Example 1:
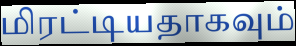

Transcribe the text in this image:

மிரட்டியதாகவும்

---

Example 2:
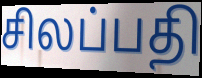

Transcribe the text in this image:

சிலப்பதி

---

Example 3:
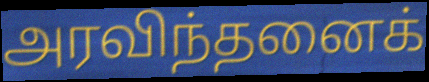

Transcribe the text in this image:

அரவிந்தனைக்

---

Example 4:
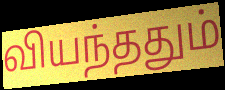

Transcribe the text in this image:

வியந்ததும்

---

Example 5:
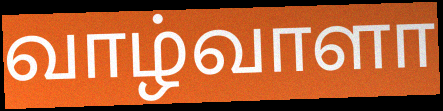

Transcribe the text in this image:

வாழ்வாளா